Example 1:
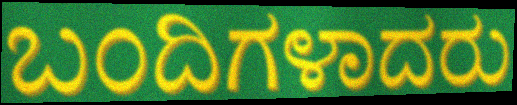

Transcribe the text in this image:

ಬಂದಿಗಳಾದರು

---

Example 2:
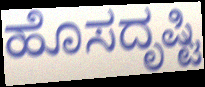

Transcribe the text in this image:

ಹೊಸದೃಷ್ಟಿ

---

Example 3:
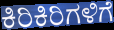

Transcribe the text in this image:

ಕಿರಿಕಿರಿಗಳಿಗೆ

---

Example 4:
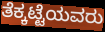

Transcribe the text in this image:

ತೆಕ್ಕಟ್ಟೆಯವರು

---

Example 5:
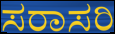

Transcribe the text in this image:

ಸರಾಸರಿ